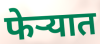
फेऱ्यात